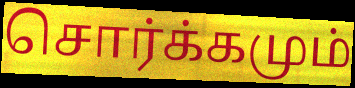
சொர்க்கமும்